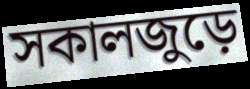
সকালজুড়ে